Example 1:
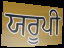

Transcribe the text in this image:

ਯਰੂਪੀ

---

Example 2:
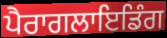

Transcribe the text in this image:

ਪੈਰਾਗਲਾਇਡਿੰਗ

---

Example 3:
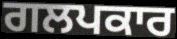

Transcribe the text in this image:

ਗਲਪਕਾਰ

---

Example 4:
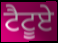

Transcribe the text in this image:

ਟੈਟੂਏ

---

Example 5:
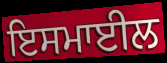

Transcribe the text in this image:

ਇਸਮਾਈਲ